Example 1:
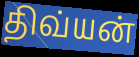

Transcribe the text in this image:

திவ்யன்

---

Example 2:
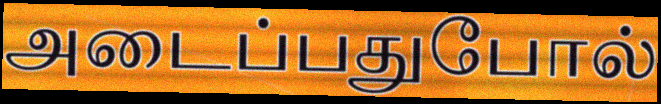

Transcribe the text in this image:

அடைப்பதுபோல்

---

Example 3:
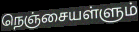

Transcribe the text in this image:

நெஞ்சையள்ளும்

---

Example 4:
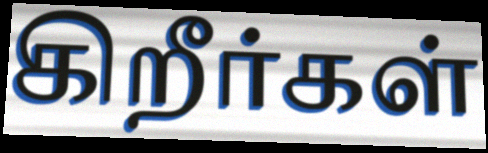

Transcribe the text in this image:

கிறீர்கள்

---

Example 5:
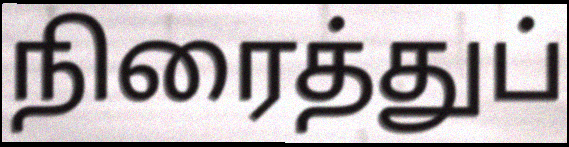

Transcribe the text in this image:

நிரைத்துப்